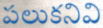
పలుకనివి